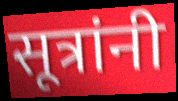
सूत्रांनी